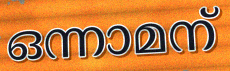
ഒന്നാമന്